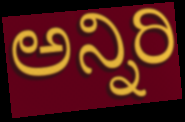
ಅನ್ನಿರಿ